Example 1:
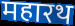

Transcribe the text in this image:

महारथ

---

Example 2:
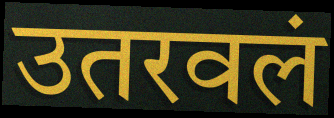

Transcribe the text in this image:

उतरवलं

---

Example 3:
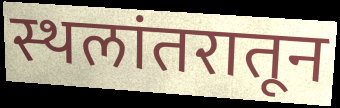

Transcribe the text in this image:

स्थलांतरातून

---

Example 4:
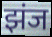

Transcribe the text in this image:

झंज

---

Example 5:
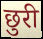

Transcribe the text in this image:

छुरी